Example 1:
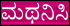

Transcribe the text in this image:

ಮಥನಿಸಿ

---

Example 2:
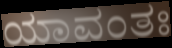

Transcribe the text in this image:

ಯಾವಂತಃ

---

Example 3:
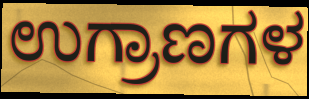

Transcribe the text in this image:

ಉಗ್ರಾಣಗಳ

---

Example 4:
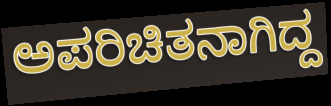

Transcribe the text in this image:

ಅಪರಿಚಿತನಾಗಿದ್ದ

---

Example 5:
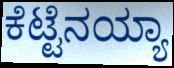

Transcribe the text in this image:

ಕೆಟ್ಟೆನಯ್ಯಾ